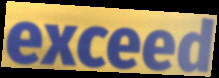
exceed